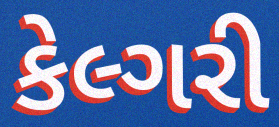
કેલ્ગરી